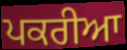
ਪਕਰੀਆ